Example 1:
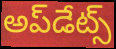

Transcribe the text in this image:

అప్‌డేట్స్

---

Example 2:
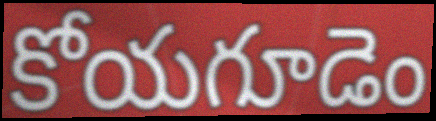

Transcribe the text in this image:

కోయగూడెం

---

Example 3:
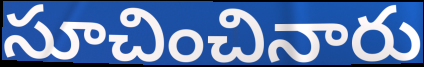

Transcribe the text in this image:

సూచించినారు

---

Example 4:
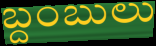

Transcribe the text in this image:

బ్దంబులు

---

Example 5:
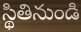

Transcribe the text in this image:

స్థితినుండి